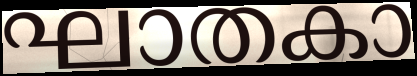
ഘാതകാ